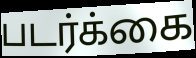
படர்க்கை